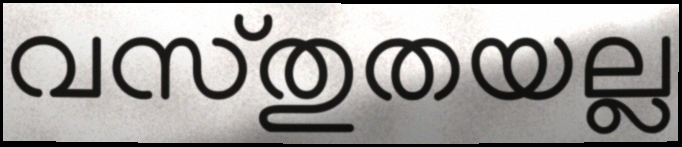
വസ്തുതയല്ല